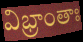
విభ్రాంతాః